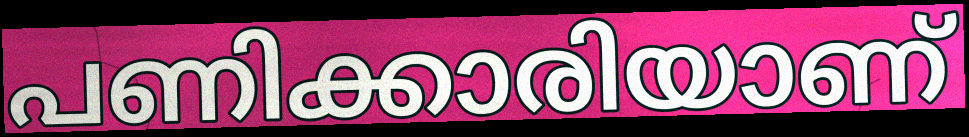
പണിക്കാരിയാണ്